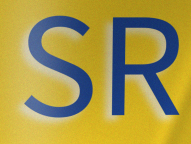
SR